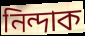
নিন্দাক